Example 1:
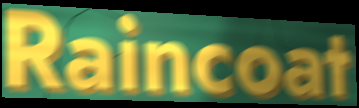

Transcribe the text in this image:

Raincoat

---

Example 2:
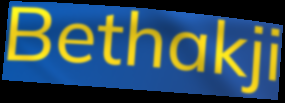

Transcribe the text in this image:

Bethakji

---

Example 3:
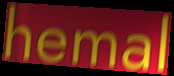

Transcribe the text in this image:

hemal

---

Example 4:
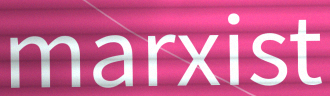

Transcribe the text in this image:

marxist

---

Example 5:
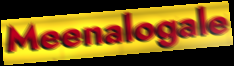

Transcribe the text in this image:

Meenalogale